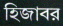
হিজাবর